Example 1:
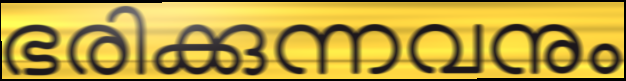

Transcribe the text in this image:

ഭരിക്കുന്നവനും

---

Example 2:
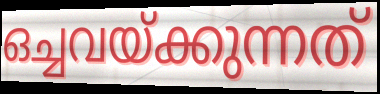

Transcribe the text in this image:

ഒച്ചവയ്ക്കുന്നത്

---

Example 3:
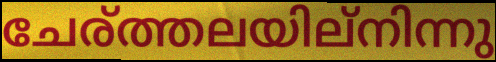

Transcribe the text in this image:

ചേര്ത്തലയില്നിന്നു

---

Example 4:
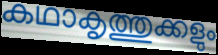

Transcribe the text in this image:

കഥാകൃത്തുക്കളും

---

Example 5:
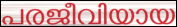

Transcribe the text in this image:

പരജീവിയായ